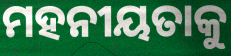
ମହନୀୟତାକୁ